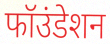
फॉउंडेशन